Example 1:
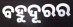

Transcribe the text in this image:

ବହୁଦୂରର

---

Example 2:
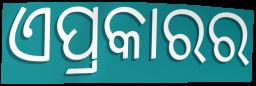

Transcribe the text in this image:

ଏପ୍ରକାରର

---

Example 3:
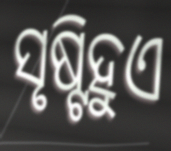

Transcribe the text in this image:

ସୃଷ୍ଟିହୁଏ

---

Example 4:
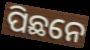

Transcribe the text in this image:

ପିଛନେ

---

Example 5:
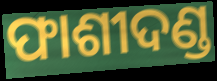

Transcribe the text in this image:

ଫାଶୀଦଣ୍ଡ